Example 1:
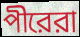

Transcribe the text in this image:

পীরেরা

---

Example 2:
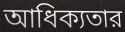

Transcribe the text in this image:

আধিক্যতার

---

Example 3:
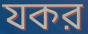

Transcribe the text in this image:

যকর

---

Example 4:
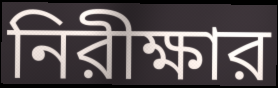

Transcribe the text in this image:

নিরীক্ষার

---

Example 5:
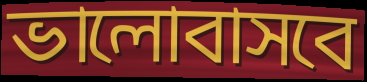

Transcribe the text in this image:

ভালোবাসবে